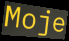
Moje